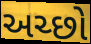
અચ્છો